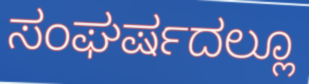
ಸಂಘರ್ಷದಲ್ಲೂ